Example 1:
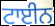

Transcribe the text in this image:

ਟਾਈਨ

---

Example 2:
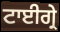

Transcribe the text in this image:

ਟਾਈਗ੍ਰੇ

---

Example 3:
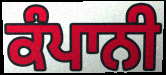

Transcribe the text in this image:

ਕੰਪਾਨੀ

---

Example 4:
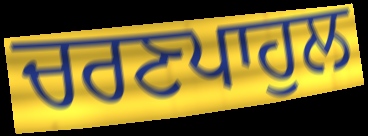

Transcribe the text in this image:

ਚਰਣਪਾਹੁਲ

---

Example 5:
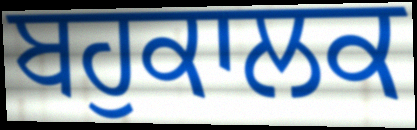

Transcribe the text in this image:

ਬਹੁਕਾਲਕ